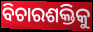
ବିଚାରଶକ୍ତିକୁ